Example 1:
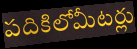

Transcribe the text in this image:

పదికిలోమీటర్లు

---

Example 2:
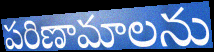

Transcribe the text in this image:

పరిణామాలను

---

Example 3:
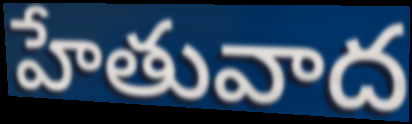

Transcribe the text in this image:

హేతువాద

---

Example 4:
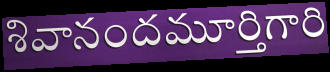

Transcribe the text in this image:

శివానందమూర్తిగారి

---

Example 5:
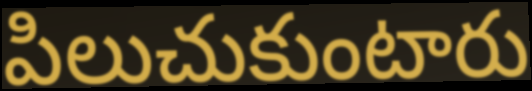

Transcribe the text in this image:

పిలుచుకుంటారు